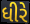
ધીરે